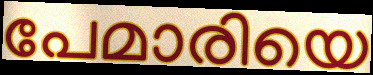
പേമാരിയെ